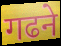
गढने